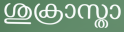
ശുക്രാസ്താ